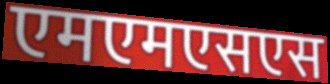
एमएमएसएस